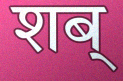
शब्